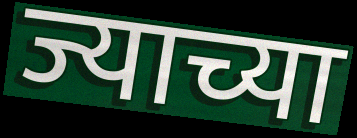
ज्याच्या